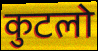
कुटलो